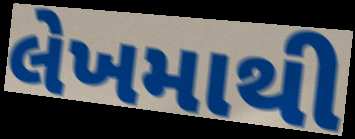
લેખમાથી